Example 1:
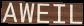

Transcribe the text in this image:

AWEIL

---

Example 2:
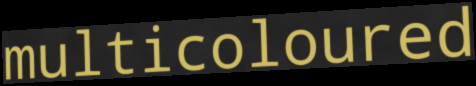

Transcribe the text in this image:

multicoloured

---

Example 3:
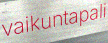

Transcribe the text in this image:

vaikuntapali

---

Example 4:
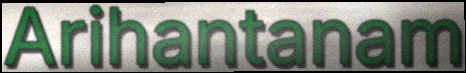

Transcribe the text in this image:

Arihantanam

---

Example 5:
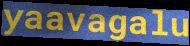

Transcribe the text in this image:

yaavagalu